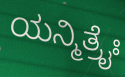
ಯನ್ಮಿತ್ರೈಃ